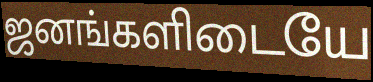
ஜனங்களிடையே